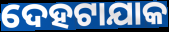
ଦେହଟାଯାକ